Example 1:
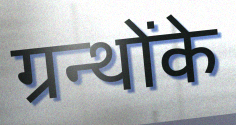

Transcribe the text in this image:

ग्रन्थोंके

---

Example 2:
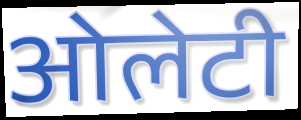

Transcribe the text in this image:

ओलेटी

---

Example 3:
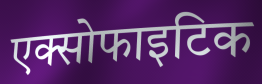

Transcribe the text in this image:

एक्सोफाइटिक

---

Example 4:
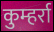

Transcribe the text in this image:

कुम्हर्रा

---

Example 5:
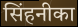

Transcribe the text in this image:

सिंहनीका